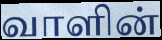
வாளின்